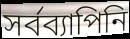
সর্বব্যাপিনি